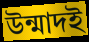
উন্মাদই